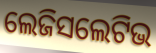
ଲେଜିସଲେଟିଭ